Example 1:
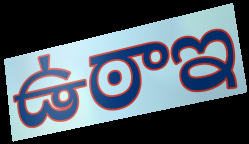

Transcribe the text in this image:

ఉఠాఇ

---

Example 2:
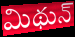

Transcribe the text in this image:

మిథున్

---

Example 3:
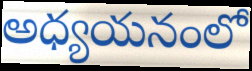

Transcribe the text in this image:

అధ్యయనంలో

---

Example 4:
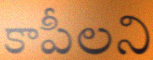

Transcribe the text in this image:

కాపీలని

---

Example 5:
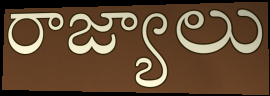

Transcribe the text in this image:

రాజ్యాలు